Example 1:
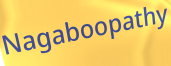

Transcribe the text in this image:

Nagaboopathy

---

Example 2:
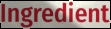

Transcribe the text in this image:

Ingredient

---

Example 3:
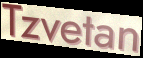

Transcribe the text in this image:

Tzvetan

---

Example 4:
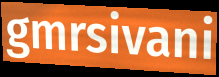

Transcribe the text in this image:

gmrsivani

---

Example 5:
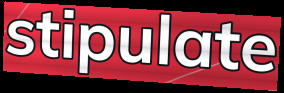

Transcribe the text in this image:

stipulate